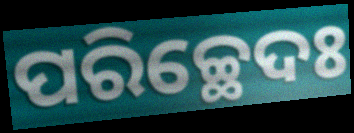
ପରିଚ୍ଛେଦଃ